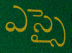
ఎస్సై